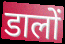
डालों